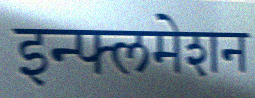
इन्फ्लमेशन